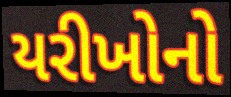
યરીખોનો